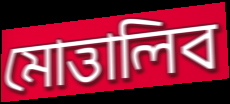
মোত্তালিব